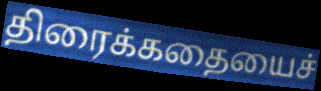
திரைக்கதையைச்